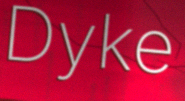
Dyke